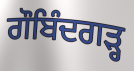
ਗੌਬਿੰਦਗੜ੍ਹ